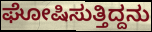
ಘೋಷಿಸುತ್ತಿದ್ದನು